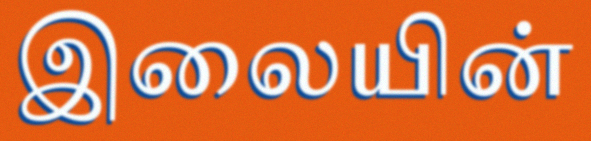
இலையின்